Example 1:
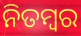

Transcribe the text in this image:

ନିତମ୍ୱର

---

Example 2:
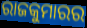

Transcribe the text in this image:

ରାଜକୁମାରର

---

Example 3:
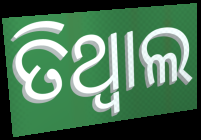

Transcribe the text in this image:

ତିଥ୍ୱାଲ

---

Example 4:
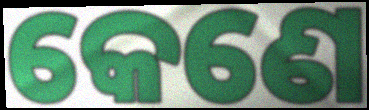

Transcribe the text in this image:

କେଣେ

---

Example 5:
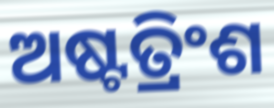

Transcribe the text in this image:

ଅଷ୍ଟତ୍ରିଂଶ